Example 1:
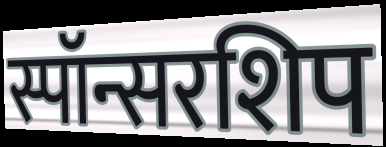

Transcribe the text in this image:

स्पॉन्सरशिप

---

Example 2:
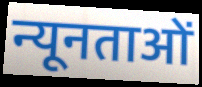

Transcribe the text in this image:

न्यूनताओं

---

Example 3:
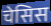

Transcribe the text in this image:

चेसिस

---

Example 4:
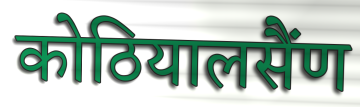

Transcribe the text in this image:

कोठियालसैंण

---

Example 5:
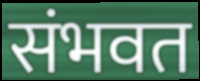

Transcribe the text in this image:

संभवत